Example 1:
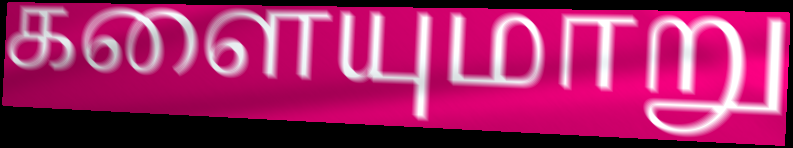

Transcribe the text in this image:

களையுமாறு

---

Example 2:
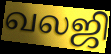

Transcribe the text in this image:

வலஜி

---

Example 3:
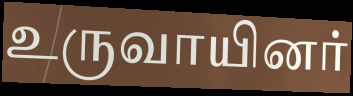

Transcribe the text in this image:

உருவாயினர்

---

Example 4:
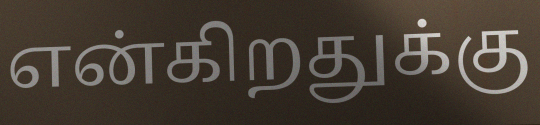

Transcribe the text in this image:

என்கிறதுக்கு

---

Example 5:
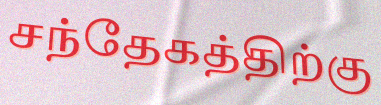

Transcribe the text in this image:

சந்தேகத்திற்கு